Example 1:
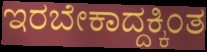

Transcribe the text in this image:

ಇರಬೇಕಾದ್ದಕ್ಕಿಂತ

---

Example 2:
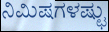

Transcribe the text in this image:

ನಿಮಿಷಗಳಷ್ಟು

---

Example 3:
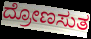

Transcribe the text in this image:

ದ್ರೋಣಸುತ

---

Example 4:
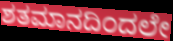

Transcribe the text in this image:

ಶತಮಾನದಿಂದಲೇ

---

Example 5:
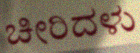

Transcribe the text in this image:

ಚೀರಿದಳು